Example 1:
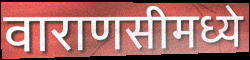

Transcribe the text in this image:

वाराणसीमध्ये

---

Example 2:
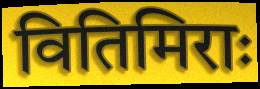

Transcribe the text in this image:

वितिमिराः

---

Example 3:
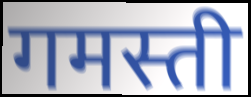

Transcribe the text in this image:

गमस्ती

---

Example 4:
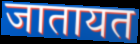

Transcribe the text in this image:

जातायत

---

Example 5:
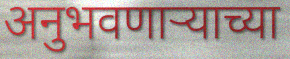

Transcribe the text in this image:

अनुभवणार्‍याच्या